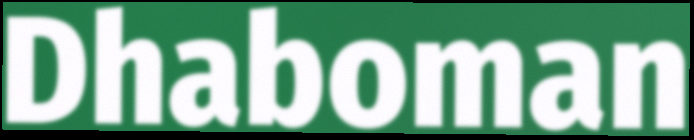
Dhaboman